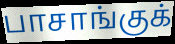
பாசாங்குக்